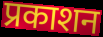
प्रकाशन